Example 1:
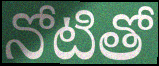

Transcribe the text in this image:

నోటితో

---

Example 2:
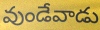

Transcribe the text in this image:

వుండేవాడు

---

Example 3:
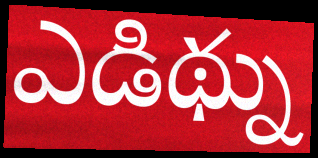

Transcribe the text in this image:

ఎడిథ్ను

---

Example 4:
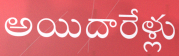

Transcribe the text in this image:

అయిదారేళ్లు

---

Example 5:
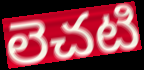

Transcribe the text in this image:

లెచటి